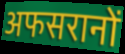
अफसरानों